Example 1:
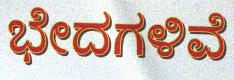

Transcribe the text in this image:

ಭೇದಗಳಿವೆ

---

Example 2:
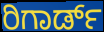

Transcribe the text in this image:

ರಿಗಾರ್ಡ್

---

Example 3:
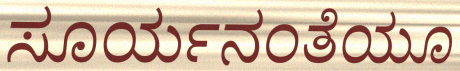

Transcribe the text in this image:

ಸೂರ್ಯನಂತೆಯೂ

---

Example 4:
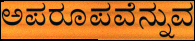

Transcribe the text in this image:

ಅಪರೂಪವೆನ್ನುವ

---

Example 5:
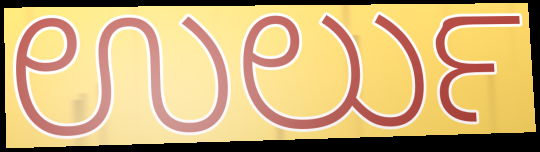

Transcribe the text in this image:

ಉರ್ಲು